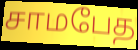
சாமபேத